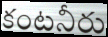
కంటనీరు